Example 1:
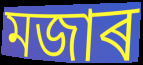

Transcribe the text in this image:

মজাৰ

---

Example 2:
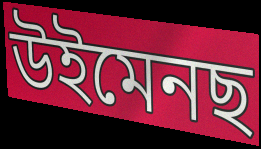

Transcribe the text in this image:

উইমেনছ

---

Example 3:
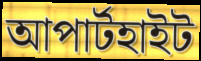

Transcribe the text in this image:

আপাৰ্টহাইট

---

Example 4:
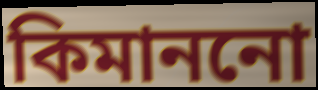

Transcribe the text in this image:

কিমাননো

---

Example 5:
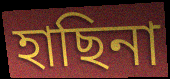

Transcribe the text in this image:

হাছিনা